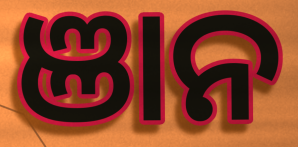
ଞାନ